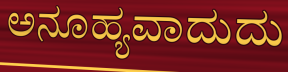
ಅನೂಹ್ಯವಾದುದು